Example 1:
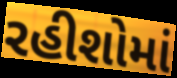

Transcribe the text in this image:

રહીશોમાં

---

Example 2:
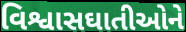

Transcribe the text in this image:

વિશ્વાસઘાતીઓને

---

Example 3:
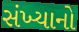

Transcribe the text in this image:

સંખ્યાનો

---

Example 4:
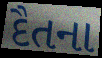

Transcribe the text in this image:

દૈતના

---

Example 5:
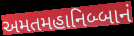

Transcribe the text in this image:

અમતમહાનિબ્બાનં